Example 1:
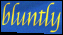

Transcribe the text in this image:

bluntly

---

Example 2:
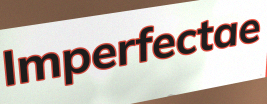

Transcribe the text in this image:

Imperfectae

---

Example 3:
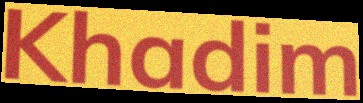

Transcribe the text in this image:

Khadim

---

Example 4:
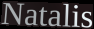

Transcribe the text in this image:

Natalis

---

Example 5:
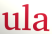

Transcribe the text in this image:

ula